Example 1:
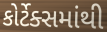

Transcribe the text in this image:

કોર્ટેક્સમાંથી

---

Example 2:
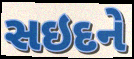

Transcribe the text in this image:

સઇદને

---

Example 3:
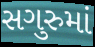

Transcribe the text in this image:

સગુરુમાં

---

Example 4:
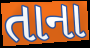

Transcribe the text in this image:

તાના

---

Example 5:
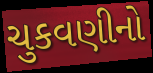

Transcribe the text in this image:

ચુકવણીનો